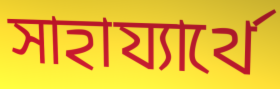
সাহায্যার্থে